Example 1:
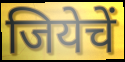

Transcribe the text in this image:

जियेचें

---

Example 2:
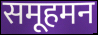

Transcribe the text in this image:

समूहमन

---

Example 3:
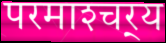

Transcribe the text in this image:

परमाश्चर्य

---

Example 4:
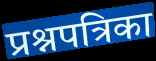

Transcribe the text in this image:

प्रश्नपत्रिका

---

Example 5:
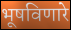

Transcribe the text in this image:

भूषविणारे